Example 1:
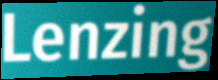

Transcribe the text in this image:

Lenzing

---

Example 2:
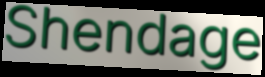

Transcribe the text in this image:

Shendage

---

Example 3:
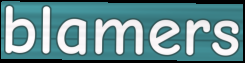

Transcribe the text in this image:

blamers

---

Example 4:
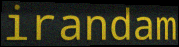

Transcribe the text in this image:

irandam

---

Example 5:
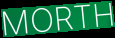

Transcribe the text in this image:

MORTH